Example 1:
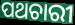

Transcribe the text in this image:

ପଥଚାରୀ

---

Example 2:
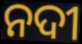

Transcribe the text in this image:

ନଦୀ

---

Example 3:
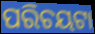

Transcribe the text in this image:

ପରିଚୟଟା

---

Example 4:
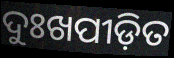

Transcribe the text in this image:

ଦୁଃଖପୀଡ଼ିତ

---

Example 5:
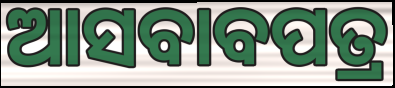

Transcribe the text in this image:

ଆସବାବପତ୍ର